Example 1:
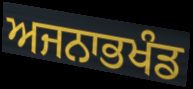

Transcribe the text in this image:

ਅਜਨਾਭਖੰਡ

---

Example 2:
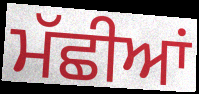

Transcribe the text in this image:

ਮੱਛੀਆਂ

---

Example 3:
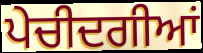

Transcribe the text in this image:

ਪੇਚੀਦਗੀਆਂ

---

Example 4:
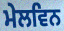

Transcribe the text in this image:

ਮੇਲਵਿਨ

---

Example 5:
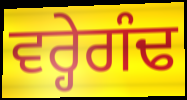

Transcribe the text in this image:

ਵਰ੍ਹੇਗੰਢ